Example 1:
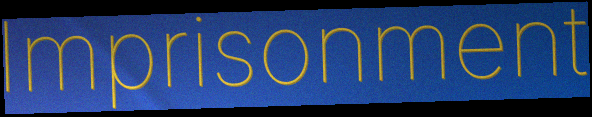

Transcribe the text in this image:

Imprisonment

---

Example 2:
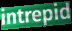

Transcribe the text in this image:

intrepid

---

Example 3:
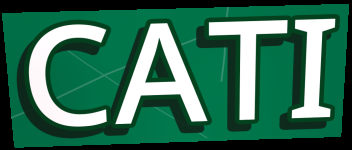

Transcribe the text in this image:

CATI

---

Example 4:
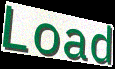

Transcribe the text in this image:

Load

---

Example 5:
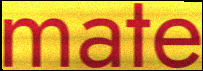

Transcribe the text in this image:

mate